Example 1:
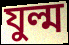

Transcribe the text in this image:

যুল্ম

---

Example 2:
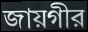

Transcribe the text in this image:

জায়গীর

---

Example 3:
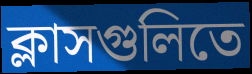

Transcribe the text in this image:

ক্লাসগুলিতে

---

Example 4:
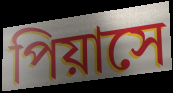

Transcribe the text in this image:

পিয়াসে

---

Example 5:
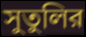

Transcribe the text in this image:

সুতুলির